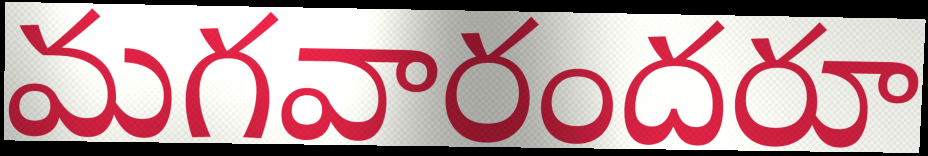
మగవారందరూ